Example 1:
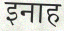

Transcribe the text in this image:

इनाह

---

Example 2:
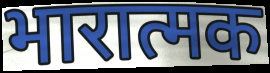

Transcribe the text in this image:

भारात्मक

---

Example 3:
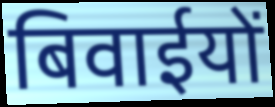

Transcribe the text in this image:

बिवाईयों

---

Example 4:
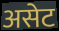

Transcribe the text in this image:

असेट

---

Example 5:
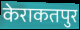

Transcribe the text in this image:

केराकतपुर